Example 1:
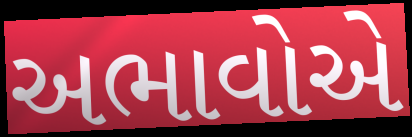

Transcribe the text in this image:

અભાવોએ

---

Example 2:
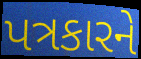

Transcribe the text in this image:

પત્રકારને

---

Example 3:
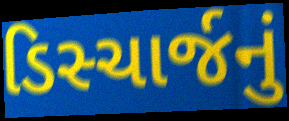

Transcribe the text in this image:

ડિસ્ચાર્જનું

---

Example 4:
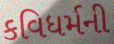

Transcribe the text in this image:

કવિધર્મની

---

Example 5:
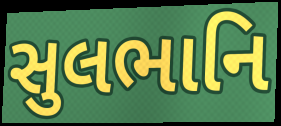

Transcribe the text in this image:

સુલભાનિ